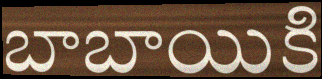
బాబాయికి